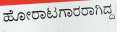
ಹೋರಾಟಗಾರರಾಗಿದ್ದ